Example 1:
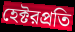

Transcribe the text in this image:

হেক্টরপ্রতি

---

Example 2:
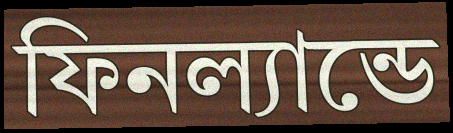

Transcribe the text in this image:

ফিনল্যান্ডে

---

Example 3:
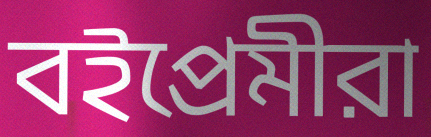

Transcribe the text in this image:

বইপ্রেমীরা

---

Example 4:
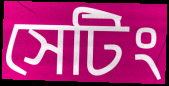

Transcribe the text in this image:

সেটিং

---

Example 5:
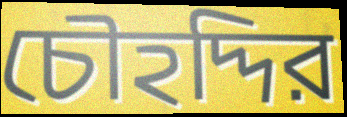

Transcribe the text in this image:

চৌহদ্দির